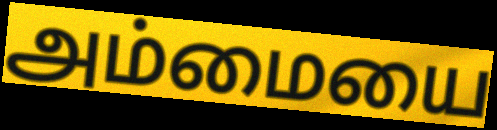
அம்மையை